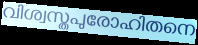
വിശ്വസ്തപുരോഹിതനെ